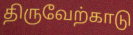
திருவேற்காடு